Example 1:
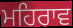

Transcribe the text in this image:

ਮਹਿਰਾਵ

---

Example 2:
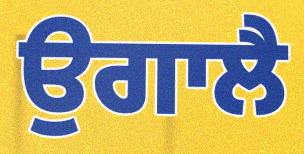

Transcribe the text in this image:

ਉਗਾਲੈ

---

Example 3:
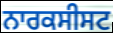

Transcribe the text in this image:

ਨਾਰਕਸੀਸਟ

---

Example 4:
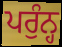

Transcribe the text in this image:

ਪਰੁੰਨ੍ਹ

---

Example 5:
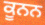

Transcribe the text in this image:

ਕੂਨਨ